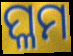
ପ୍ଳମ